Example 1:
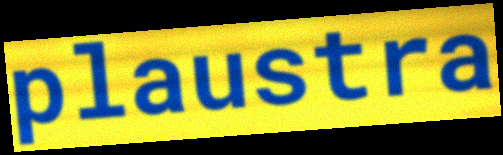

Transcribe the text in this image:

plaustra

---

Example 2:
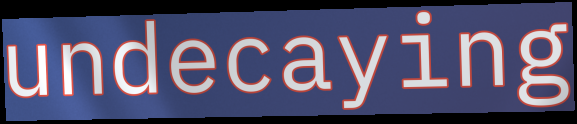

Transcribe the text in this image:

undecaying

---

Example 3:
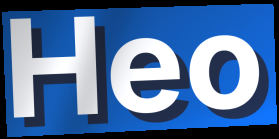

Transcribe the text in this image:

Heo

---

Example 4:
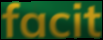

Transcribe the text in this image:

facit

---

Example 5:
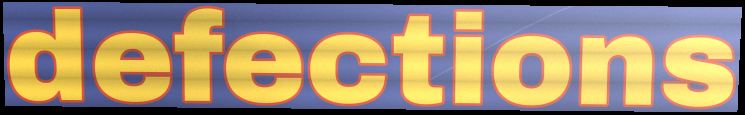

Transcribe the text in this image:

defections